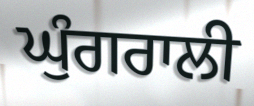
ਘੁੰਗਰਾਲੀ